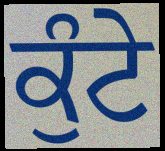
ਕੁੰਟੇ